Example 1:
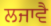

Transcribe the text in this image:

ਲਜਾਵੈ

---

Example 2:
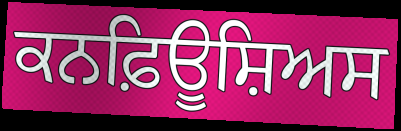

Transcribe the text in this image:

ਕਨਫ਼ਿਊਸ਼ਿਅਸ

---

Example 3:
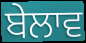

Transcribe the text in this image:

ਬੇਲਾਵ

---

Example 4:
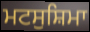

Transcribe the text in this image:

ਮਟਸੁਸ਼ਿਮਾ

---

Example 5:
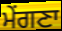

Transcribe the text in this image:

ਮੇਂਗਣਾ